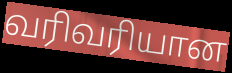
வரிவரியான